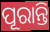
ପୂରାନ୍ତି